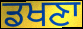
ਡਖਣਾ